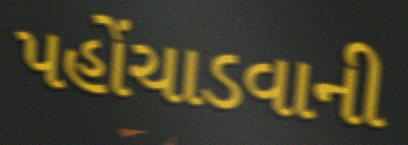
પહોંચાડવાની